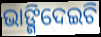
ଭାଙ୍ଗିଦେଇଚି